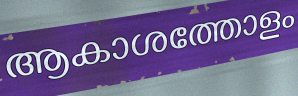
ആകാശത്തോളം